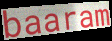
baaram